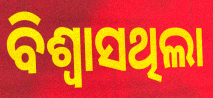
ବିଶ୍ୱାସଥିଲା